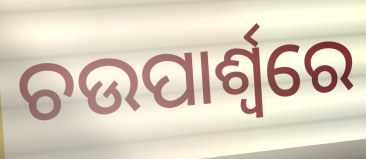
ଚଉପାର୍ଶ୍ୱରେ